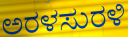
ಅರಳಸುರಳಿ